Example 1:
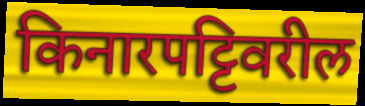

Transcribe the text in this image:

किनारपट्टिवरील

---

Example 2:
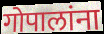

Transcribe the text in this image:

गोपालांना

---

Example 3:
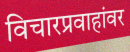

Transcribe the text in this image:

विचारप्रवाहांवर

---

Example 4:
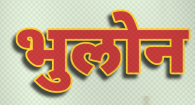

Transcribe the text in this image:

भुलोन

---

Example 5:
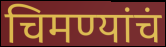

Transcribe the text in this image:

चिमण्यांचं